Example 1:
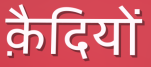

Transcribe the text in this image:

क़ैदियों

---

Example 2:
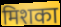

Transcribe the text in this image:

मिशका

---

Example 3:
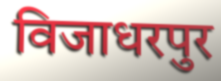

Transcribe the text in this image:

विजाधरपुर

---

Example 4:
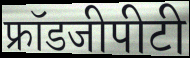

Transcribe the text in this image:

फ्रॉडजीपीटी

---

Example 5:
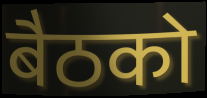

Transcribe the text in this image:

बैठको